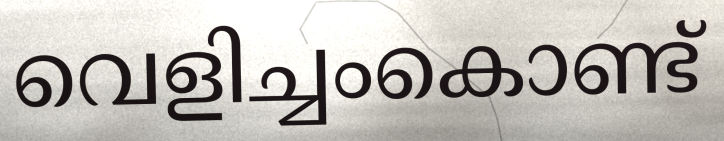
വെളിച്ചംകൊണ്ട്